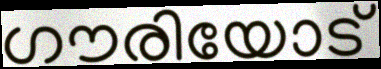
ഗൗരിയോട്